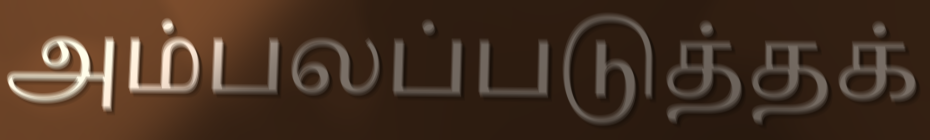
அம்பலப்படுத்தக்